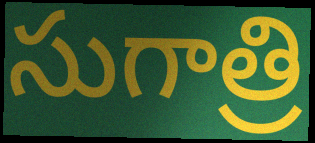
సుగాత్రి